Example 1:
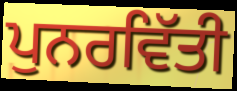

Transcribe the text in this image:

ਪੁਨਰਵਿੱਤੀ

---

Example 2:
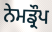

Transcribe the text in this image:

ਨੇਮਡ੍ਰੌਪ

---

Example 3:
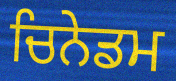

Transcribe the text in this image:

ਚਿਨੇਡਮ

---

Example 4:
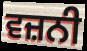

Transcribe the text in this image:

ਵਜ਼ਨੀ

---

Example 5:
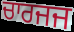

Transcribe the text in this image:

ਚਾਰਜਜ